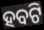
ହବଟି